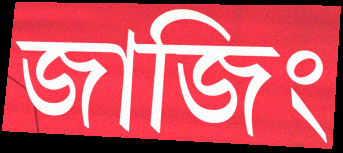
জাজিং